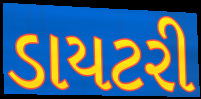
ડાયટરી